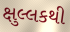
ક્ષુલ્લકથી